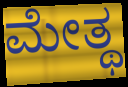
ಮೇತ್ಥ